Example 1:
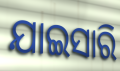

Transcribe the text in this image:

ଯାଇସାରି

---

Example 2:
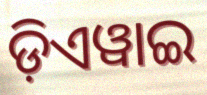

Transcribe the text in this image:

ଡ଼ିଏୱାଇ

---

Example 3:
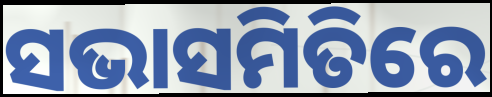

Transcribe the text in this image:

ସଭାସମିତିରେ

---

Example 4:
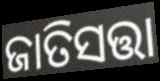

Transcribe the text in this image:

ଜାତିସତ୍ତା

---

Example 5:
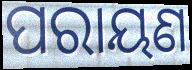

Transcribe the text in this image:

ପରାୟଣ